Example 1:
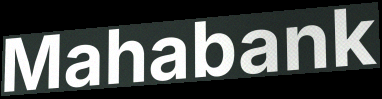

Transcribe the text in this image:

Mahabank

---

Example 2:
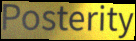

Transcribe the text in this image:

Posterity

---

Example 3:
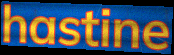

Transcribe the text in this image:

hastine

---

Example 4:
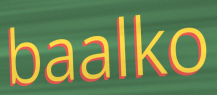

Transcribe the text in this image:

baalko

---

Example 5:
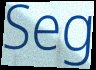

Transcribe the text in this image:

Seg